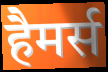
हैमर्स